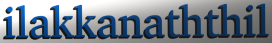
ilakkanaththil